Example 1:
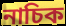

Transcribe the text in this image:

নাচিক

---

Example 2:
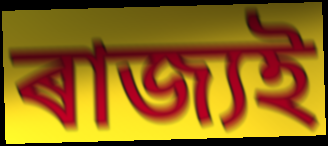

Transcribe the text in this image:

ৰাজ্যই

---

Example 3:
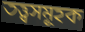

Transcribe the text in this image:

তত্ত্বসমূহক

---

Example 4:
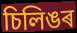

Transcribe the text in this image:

চিলিঙৰ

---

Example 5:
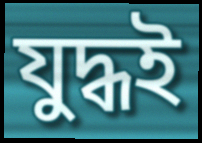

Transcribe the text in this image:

যুদ্ধই